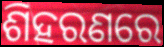
ଶିହରଣରେ